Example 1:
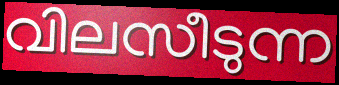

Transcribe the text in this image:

വിലസീടുന്ന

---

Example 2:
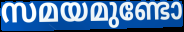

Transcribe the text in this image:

സമയമുണ്ടോ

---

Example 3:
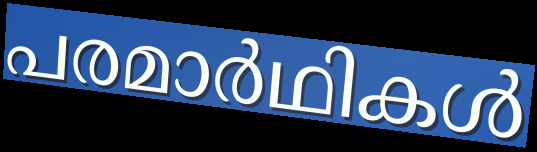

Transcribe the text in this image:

പരമാർഥികൾ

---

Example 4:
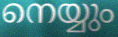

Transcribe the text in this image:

നെയ്യും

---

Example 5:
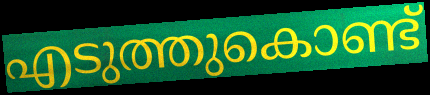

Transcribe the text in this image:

എടുത്തുകൊണ്ട്